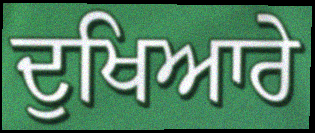
ਦੁਖਿਆਰੇ